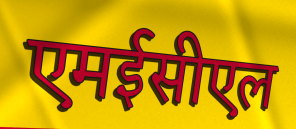
एमईसीएल